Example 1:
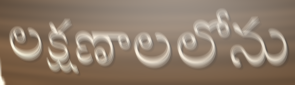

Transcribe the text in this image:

లక్షణాలలోను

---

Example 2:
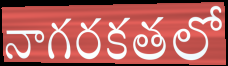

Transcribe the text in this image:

నాగరకతలో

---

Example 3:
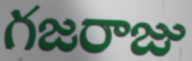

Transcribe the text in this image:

గజరాజు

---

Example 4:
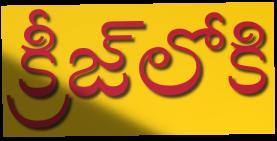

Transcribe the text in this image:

క్రీజ్‌లోకి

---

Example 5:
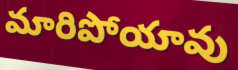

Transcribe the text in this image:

మారిపోయావు